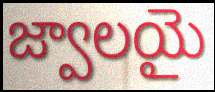
జ్వాలయై